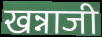
खन्नाजी